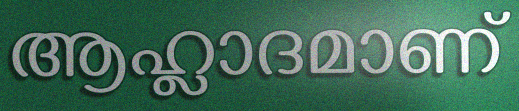
ആഹ്ലാദമാണ്